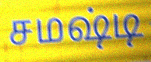
சமஷ்டி